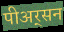
पीअर्सन